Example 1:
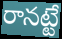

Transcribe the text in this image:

రానట్టే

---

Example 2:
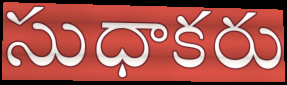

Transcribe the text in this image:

సుధాకరు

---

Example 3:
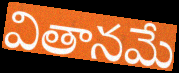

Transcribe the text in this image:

వితానమే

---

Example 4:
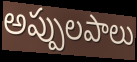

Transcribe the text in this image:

అప్పులపాలు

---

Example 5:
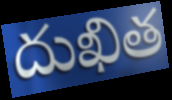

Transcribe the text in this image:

దుఖిత